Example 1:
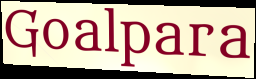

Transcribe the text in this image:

Goalpara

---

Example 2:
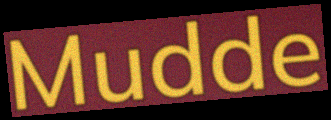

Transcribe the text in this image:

Mudde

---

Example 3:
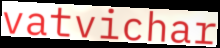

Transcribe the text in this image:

vatvichar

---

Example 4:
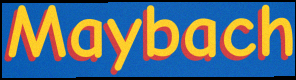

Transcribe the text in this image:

Maybach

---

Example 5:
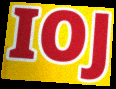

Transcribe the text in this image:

IOJ